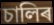
চালিৰ